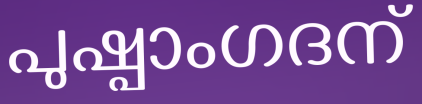
പുഷ്പാംഗദന്